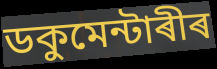
ডকুমেন্টাৰীৰ